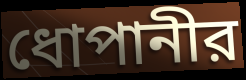
ধোপানীর